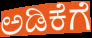
ಅಡಿಕೆಗೆ